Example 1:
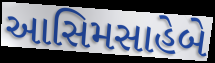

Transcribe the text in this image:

આસિમસાહેબે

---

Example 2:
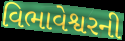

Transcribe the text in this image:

વિભાવેશ્વરની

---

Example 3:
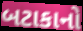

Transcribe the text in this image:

બટાકાનો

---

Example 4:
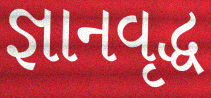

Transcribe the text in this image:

જ્ઞાનવૃદ્ધ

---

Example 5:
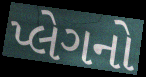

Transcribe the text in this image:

પ્લેગનો